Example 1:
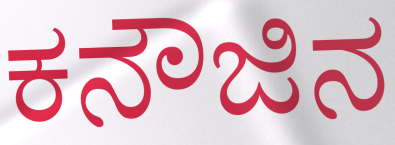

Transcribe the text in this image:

ಕನೌಜಿನ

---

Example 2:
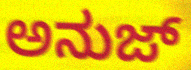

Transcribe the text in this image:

ಅನುಜ್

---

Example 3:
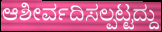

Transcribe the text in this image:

ಆಶೀರ್ವದಿಸಲ್ಪಟ್ಟದ್ದು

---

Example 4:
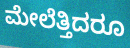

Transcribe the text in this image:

ಮೇಲೆತ್ತಿದರೂ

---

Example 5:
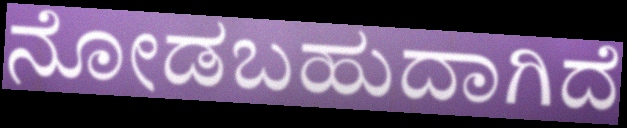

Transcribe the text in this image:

ನೋಡಬಹುದಾಗಿದೆ